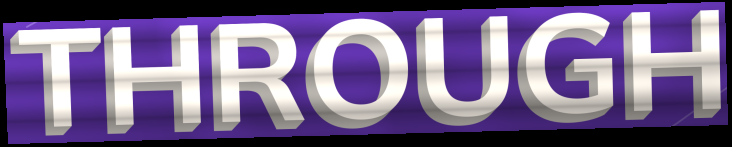
THROUGH